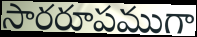
సారరూపముగా